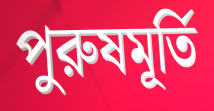
পুরুষমূর্তি